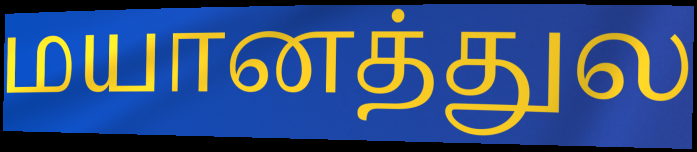
மயானத்துல